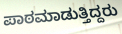
ಪಾಠಮಾಡುತ್ತಿದ್ದರು